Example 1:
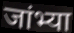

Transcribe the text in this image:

जांभ्या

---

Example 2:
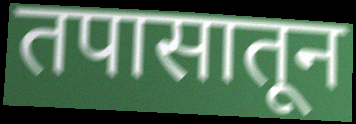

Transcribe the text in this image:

तपासातून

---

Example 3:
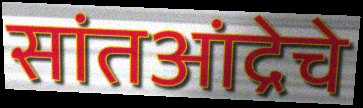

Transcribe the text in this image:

सांतआंद्रेचे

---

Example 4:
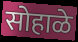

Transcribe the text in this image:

सोहाळे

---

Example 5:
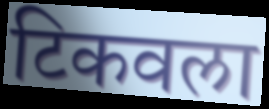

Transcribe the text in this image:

टिकवला